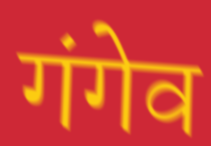
गंगेव